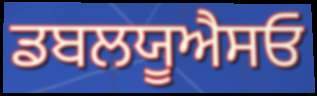
ਡਬਲਯੂਐਸਓ